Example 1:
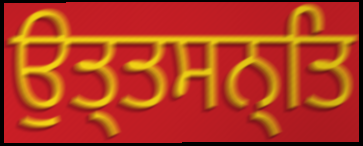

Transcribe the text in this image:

ਉਤ੍ਤਸਨ੍ਤਿ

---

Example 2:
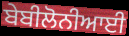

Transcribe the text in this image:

ਬੇਬੀਲੋਨੀਆਈ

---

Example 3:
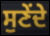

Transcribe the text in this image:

ਸੁਣੇਂਦੇ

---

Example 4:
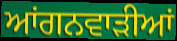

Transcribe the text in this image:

ਆਂਗਨਵਾੜੀਆਂ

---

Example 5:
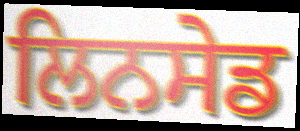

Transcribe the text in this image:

ਲਿਨਸੇਡ